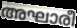
അഘാരീ